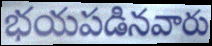
భయపడినవారు